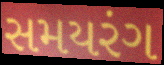
સમયરંગ